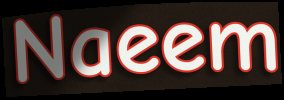
Naeem